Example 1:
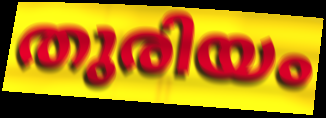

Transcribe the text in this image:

തുരിയം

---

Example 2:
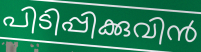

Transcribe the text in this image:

പിടിപ്പിക്കുവിൻ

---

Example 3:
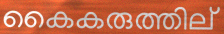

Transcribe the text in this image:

കൈകരുത്തില്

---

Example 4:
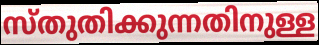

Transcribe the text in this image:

സ്തുതിക്കുന്നതിനുള്ള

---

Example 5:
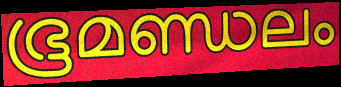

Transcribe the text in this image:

ഭൂമണ്ഡലം